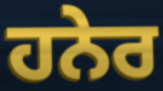
ਹਨੇਰ